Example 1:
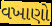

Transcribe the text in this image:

વખાણો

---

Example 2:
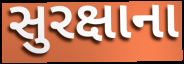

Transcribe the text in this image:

સુરક્ષાના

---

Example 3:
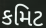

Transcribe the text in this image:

કમિટ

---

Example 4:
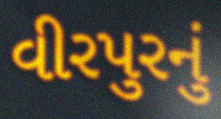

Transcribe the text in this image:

વીરપુરનું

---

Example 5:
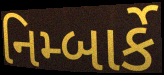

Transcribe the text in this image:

નિમ્બાર્કે